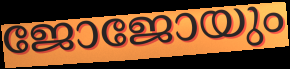
ജോജോയും